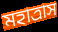
মহাত্রাস